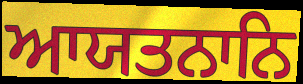
ਆਯਤਨਾਨਿ